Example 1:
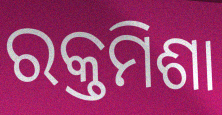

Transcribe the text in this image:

ରକ୍ତମିଶା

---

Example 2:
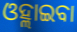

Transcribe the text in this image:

ଓହ୍ଲାଇବା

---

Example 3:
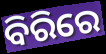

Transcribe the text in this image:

ବିରିରେ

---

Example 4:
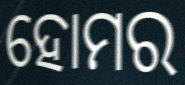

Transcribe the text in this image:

ହୋମର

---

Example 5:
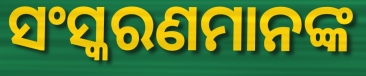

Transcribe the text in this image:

ସଂସ୍କରଣମାନଙ୍କ